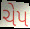
ચેપ